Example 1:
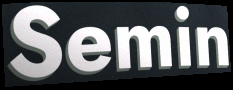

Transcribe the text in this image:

Semin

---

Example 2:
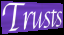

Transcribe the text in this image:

Trusts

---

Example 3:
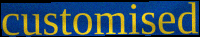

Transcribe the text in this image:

customised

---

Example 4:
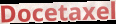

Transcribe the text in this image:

Docetaxel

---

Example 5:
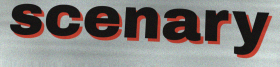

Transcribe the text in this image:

scenary